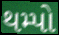
થમ્પો